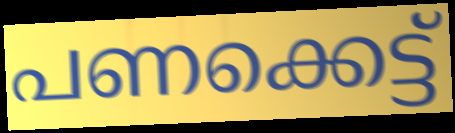
പണക്കെട്ട്